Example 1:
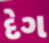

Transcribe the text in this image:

દેગ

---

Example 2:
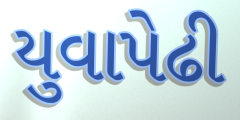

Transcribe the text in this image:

યુવાપેઢી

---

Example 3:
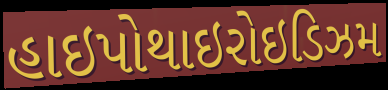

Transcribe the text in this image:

હાઇપોથાઇરોઇડિઝમ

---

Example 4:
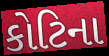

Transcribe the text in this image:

કોટિના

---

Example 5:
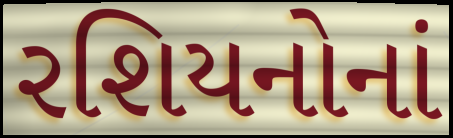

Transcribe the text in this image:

રશિયનોનાં